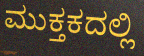
ಮುಕ್ತಕದಲ್ಲಿ